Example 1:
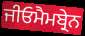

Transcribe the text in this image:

ਜੀਓਮੈਮਬ੍ਰੇਨ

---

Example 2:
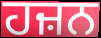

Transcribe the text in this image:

ਹਜ਼ਨ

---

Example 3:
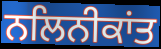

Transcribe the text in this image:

ਨਲਿਨੀਕਾਂਤ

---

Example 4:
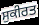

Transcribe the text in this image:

ਸੁਕੀਰਤ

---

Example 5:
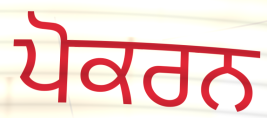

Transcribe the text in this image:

ਪੋਕਰਨ